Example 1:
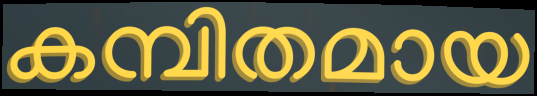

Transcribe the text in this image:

കമ്പിതമായ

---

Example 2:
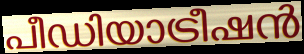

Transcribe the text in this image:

പീഡിയാട്രീഷൻ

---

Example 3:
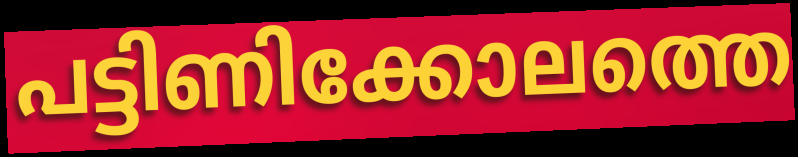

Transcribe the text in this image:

പട്ടിണിക്കോലത്തെ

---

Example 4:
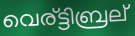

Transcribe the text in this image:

വെര്ട്ടിബ്രല്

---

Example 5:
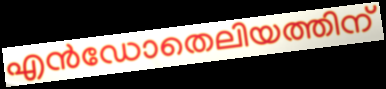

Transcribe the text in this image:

എൻഡോതെലിയത്തിന്